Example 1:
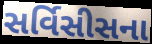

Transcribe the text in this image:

સર્વિસીસના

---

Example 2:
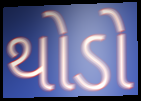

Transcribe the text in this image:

થોડો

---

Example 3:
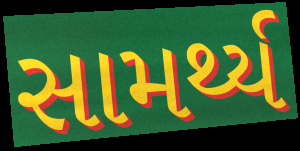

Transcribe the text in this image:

સામર્થ્ય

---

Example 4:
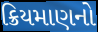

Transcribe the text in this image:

ક્રિયમાણનો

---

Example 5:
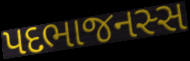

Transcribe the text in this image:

પદભાજનસ્સ